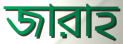
জারাহ